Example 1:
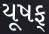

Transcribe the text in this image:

યૂષફ્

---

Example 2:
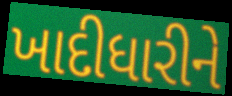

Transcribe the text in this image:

ખાદીધારીને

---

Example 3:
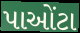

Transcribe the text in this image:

પાઓંટા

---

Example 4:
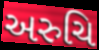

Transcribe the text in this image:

અરુચિ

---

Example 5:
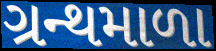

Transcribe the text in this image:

ગ્રન્થમાળા